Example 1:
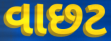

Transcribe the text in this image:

વાછટ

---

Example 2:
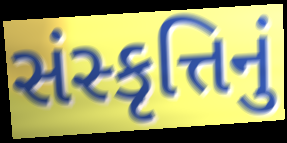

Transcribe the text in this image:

સંસ્કૃત્તિનું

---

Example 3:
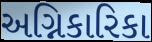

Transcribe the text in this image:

અગ્નિકારિકા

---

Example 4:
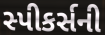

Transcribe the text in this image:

સ્પીકર્સની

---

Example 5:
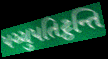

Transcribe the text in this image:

પચ્ચુપતિટ્ઠન્તિ